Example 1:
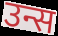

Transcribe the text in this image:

उन्स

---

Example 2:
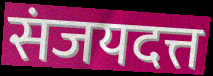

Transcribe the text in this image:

संजयदत्त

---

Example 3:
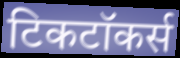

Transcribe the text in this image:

टिकटॉकर्स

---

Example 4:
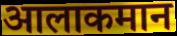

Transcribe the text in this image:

आलाकमान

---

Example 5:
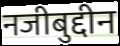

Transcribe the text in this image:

नजीबुद्दीन